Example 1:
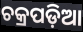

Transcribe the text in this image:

ଚକ୍ରପଡ଼ିଆ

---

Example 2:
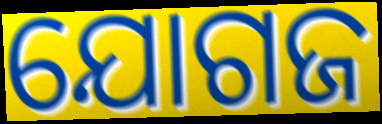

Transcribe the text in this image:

ଯୋଗଜ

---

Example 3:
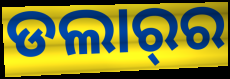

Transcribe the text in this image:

ଡଲାର୍‌ର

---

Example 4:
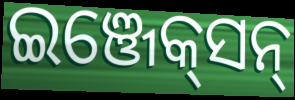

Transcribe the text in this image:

ଇଞ୍ଜେକ୍‍ସନ୍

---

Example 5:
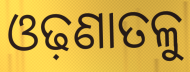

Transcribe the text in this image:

ଓଢ଼ଣାତଳୁ